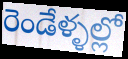
రెండేళ్ళల్లో